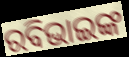
ରବିଭାଇଙ୍କ